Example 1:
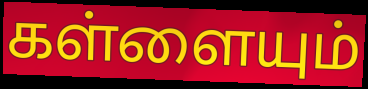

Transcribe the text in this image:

கள்ளையும்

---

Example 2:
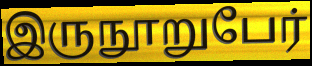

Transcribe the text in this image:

இருநூறுபேர்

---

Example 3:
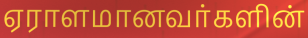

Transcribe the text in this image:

ஏராளமானவர்களின்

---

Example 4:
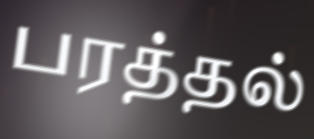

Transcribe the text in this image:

பரத்தல்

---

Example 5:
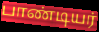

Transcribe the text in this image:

பாண்டியர்